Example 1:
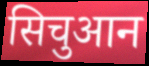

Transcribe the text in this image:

सिचुआन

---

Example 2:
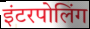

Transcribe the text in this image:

इंटरपोलिंग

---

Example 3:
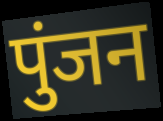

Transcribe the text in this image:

पुंजन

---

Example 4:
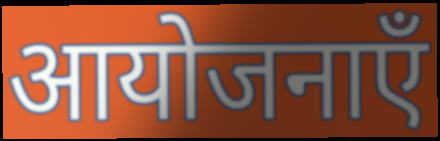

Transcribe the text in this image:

आयोजनाएँ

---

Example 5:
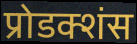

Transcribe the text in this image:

प्रोडक्शंस